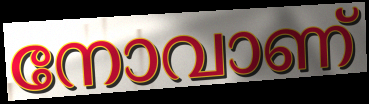
നോവാണ്